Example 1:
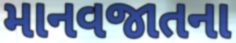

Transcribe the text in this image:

માનવજાતના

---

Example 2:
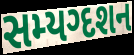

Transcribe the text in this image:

સમ્યગ્દશન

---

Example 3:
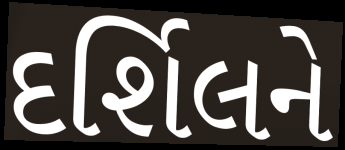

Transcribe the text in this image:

દર્શિલને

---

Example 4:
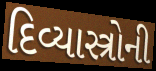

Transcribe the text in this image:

દિવ્યાસ્ત્રોની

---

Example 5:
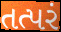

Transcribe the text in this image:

તત્પરં